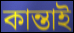
কান্তাই